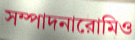
সম্পাদনারোমিও